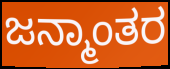
ಜನ್ಮಾಂತರ